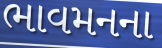
ભાવમનના